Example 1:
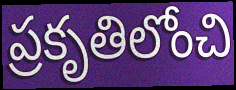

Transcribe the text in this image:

ప్రకృతిలోంచి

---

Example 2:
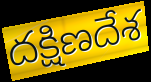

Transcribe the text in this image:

దక్షిణదేశ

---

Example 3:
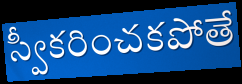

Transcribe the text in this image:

స్వీకరించకపోతే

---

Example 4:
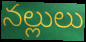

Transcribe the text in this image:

నల్లులు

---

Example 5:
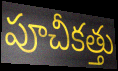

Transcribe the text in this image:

పూచీకత్తు